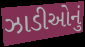
ઝાડીઓનું